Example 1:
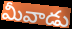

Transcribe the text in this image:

మీవాడు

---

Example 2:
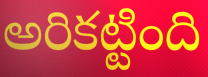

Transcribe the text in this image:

అరికట్టింది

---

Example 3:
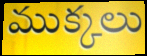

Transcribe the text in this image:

ముక్కలు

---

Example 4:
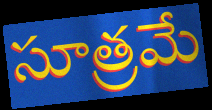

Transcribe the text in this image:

సూత్రమే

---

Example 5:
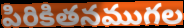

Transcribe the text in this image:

పిరికితనముగల